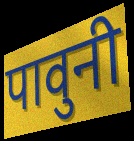
पावुनी